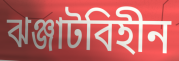
ঝঞ্জাটবিহীন